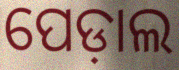
ପେଡ଼ାଲ